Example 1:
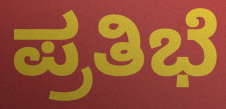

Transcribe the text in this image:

ಪ್ರತಿಭೆ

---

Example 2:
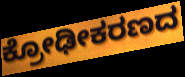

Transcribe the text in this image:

ಕ್ರೋಢೀಕರಣದ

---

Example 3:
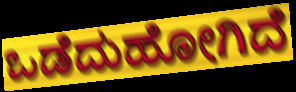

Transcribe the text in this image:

ಒಡೆದುಹೋಗಿದೆ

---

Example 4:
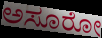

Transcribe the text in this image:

ಅಸೂರೋ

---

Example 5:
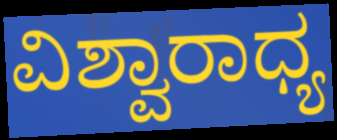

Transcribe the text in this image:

ವಿಶ್ವಾರಾಧ್ಯ